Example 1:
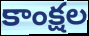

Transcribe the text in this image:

కాంక్షల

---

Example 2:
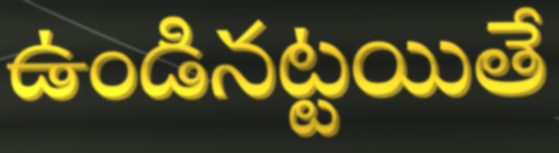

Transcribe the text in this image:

ఉండినట్టయితే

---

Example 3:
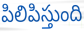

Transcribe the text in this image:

పిలిపిస్తుంది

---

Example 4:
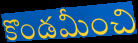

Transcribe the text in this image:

కొండమీంచి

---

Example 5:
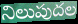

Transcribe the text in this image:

నిలుపుదల